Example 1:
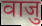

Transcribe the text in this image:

वाजु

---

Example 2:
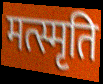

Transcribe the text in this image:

मत्स्मृति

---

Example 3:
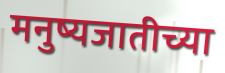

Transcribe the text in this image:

मनुष्यजातीच्या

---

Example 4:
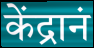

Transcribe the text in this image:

केंद्रानं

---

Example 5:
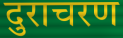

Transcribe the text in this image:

दुराचरण